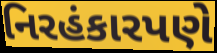
નિરહંકારપણે